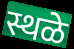
स्थळे